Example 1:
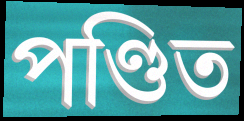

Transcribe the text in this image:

পণ্ডিত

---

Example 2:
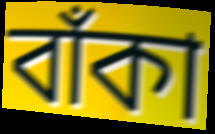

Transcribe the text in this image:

বাঁকা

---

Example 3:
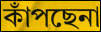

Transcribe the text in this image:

কাঁপছেনা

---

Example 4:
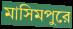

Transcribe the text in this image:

মাসিমপুরে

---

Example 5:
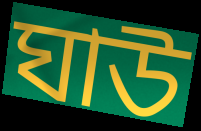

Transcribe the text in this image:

ঘাউ